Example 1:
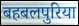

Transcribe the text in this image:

बहबलपुरिया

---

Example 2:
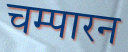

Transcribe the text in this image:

चम्पारन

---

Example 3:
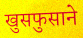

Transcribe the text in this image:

खुसफुसाने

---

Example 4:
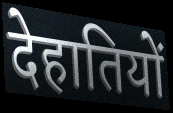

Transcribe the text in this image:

देहातियों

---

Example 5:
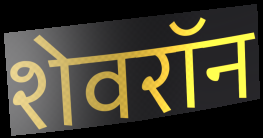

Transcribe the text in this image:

शेवरॉन